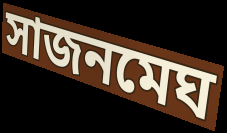
সাজনমেঘ